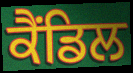
ਕੈਂਡਿਲ